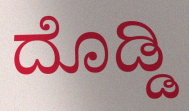
ದೊಡ್ಡಿ